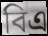
বিএ